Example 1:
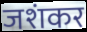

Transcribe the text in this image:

जशंकर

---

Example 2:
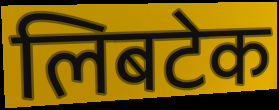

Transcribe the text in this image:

लिबटेक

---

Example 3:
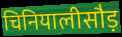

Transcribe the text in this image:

चिनियालीसौड़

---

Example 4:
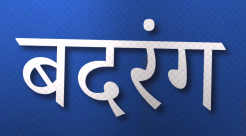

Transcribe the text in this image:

बदरंग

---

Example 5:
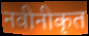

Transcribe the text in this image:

नवीनीकृत